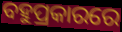
ବହୁପ୍ରକାରରେ